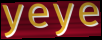
yeye